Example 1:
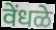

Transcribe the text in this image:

वेंधळे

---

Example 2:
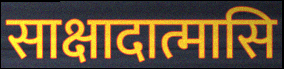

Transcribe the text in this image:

साक्षादात्मासि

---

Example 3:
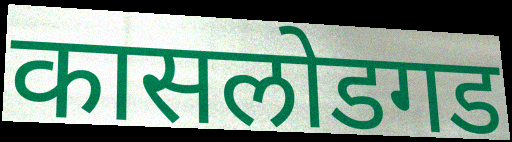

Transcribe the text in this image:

कासलोडगड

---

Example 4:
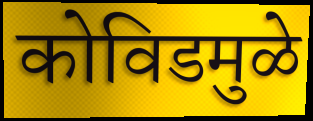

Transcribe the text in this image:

कोविडमुळे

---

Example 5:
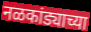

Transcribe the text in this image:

नळकांड्याच्या